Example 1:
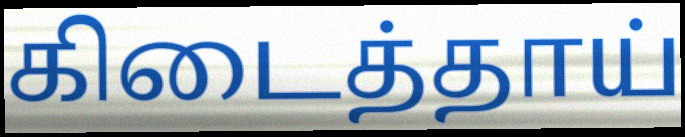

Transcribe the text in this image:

கிடைத்தாய்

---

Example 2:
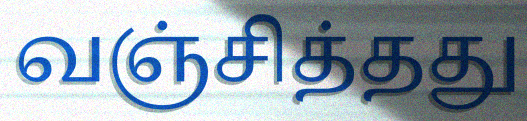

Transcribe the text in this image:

வஞ்சித்தது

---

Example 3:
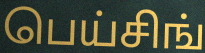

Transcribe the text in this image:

பெய்சிங்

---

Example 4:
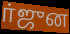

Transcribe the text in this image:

ர்ஜுன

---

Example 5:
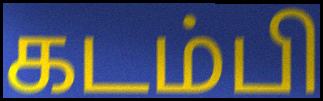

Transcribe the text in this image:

கடம்பி